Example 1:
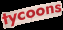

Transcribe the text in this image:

tycoons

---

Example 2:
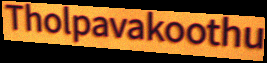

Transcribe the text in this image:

Tholpavakoothu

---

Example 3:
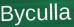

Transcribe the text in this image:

Byculla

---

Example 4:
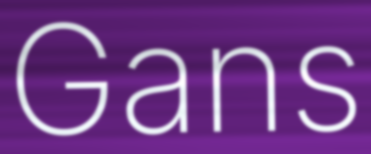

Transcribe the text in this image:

Gans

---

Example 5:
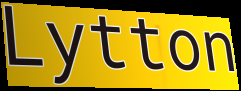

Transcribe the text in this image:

Lytton